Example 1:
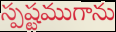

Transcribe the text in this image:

స్పష్టముగాను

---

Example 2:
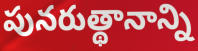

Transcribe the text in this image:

పునరుత్థానాన్ని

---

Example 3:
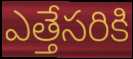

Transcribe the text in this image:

ఎత్తేసరికి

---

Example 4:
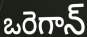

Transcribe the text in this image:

ఒరెగాన్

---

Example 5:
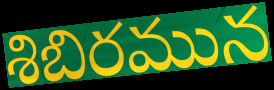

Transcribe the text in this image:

శిబిరమున